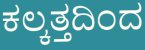
ಕಲ್ಕತ್ತದಿಂದ